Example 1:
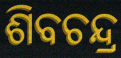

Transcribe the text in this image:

ଶିବଚନ୍ଦ୍ର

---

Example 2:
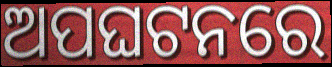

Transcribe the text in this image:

ଅପଘଟନରେ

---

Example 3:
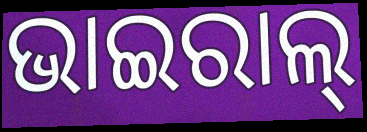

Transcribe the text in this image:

ଭାଇରାଲ୍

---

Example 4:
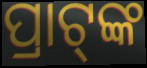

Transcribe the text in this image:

ପ୍ରାଟ୍‍ଙ୍କ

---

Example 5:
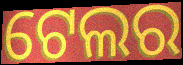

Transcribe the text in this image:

ଟେଲର